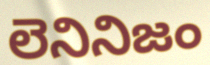
లెనినిజం